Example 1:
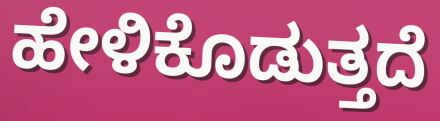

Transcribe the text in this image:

ಹೇಳಿಕೊಡುತ್ತದೆ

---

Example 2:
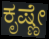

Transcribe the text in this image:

ಕೃಷ್ಣೇ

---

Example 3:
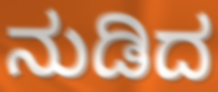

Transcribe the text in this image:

ನುಡಿದ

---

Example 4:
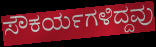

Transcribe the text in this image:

ಸೌಕರ್ಯಗಳಿದ್ದವು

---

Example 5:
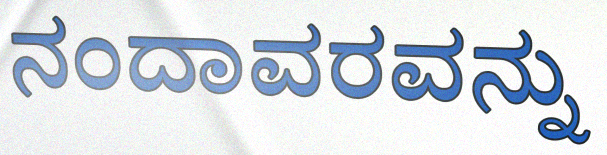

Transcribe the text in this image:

ನಂದಾವರವನ್ನು